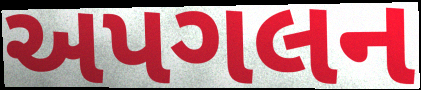
અપગલન